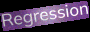
Regression